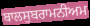
ਬਾਲਸੁਬਰਾਮਨੀਅਮ